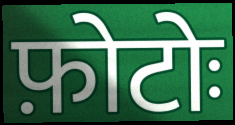
फ़ोटोः